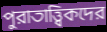
পুরাতাত্ত্বিকদের